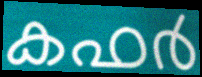
കഫർ